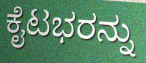
ಕೈಟಭರನ್ನು